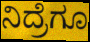
ನಿದ್ರೆಗೂ